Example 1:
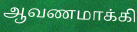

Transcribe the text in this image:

ஆவணமாக்கி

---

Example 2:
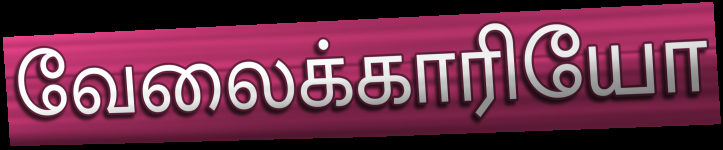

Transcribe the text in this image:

வேலைக்காரியோ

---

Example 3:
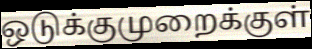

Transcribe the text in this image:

ஒடுக்குமுறைக்குள்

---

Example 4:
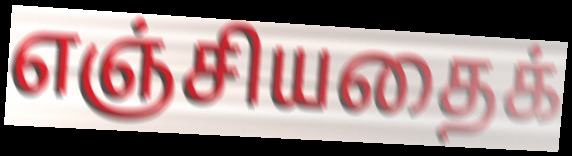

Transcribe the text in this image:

எஞ்சியதைக்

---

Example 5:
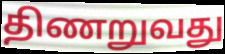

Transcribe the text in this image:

திணறுவது